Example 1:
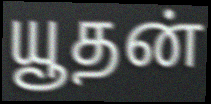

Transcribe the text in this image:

யூதன்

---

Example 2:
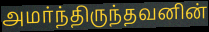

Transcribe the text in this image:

அமர்ந்திருந்தவனின்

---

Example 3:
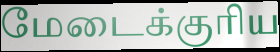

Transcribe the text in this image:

மேடைக்குரிய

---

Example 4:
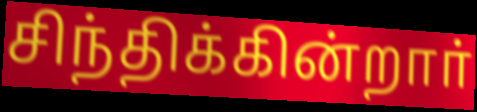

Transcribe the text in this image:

சிந்திக்கின்றார்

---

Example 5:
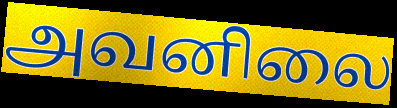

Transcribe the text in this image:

அவனிலை